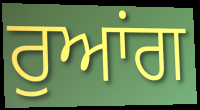
ਰੁਆਂਗ